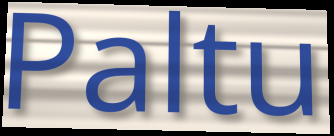
Paltu